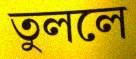
তুললে